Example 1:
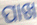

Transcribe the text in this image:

ପାଖ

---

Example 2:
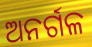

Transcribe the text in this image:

ଅନର୍ଗଳ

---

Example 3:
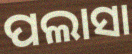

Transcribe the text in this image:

ପଲାସା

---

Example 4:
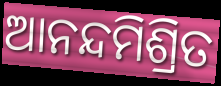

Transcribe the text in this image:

ଆନନ୍ଦମିଶ୍ରିତ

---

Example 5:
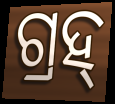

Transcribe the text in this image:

ଗ୍ରହ୍